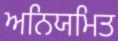
ਅਨਿਯਮਿਤ